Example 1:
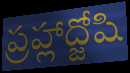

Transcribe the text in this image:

ప్రహ్లాద్జోషి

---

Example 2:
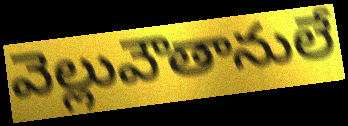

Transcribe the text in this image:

వెల్లువౌతానులే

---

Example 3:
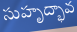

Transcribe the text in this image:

సుహృద్భావ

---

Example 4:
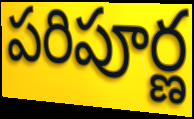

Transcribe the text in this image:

పరిపూర్ణ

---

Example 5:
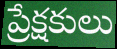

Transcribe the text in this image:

ప్రేక్షకులు